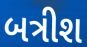
બત્રીશ